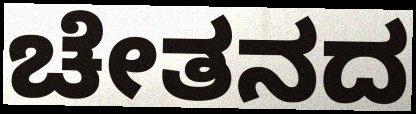
ಚೇತನದ